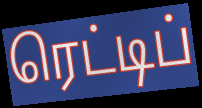
ரெட்டிப்